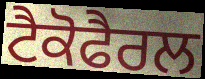
ਟੈਕੋਫੈਰਲ